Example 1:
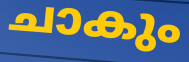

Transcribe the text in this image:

ചാകും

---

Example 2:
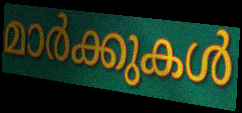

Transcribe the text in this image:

മാർക്കുകൾ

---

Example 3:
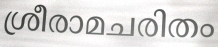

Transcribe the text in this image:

ശ്രീരാമചരിതം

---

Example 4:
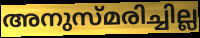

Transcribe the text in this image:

അനുസ്മരിച്ചില്ല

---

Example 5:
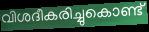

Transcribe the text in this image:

വിശദീകരിച്ചുകൊണ്ട്